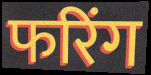
फरिंग